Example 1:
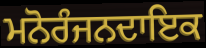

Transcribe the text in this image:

ਮਨੋਰੰਜਨਦਾਇਕ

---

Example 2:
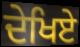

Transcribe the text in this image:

ਦੇਖਿਏ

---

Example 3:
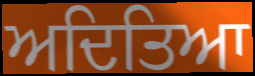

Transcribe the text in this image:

ਅਦਿਤਿਆ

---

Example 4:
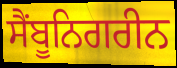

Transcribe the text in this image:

ਸੈਂਬੂਨਿਗਰੀਨ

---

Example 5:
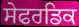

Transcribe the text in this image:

ਸੇਫਰਡਿਕ